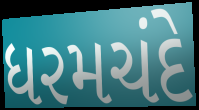
ધરમચંદે